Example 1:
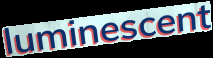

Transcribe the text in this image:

luminescent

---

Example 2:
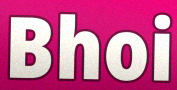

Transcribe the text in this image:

Bhoi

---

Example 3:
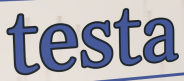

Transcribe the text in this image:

testa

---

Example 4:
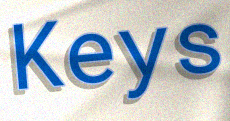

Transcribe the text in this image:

Keys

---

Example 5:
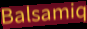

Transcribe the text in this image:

Balsamiq